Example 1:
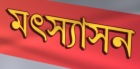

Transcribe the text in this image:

মৎস্যাসন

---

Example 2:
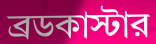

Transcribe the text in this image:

ব্রডকাস্টার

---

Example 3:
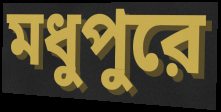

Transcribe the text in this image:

মধুপুরে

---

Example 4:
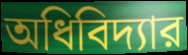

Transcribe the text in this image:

অধিবিদ্যার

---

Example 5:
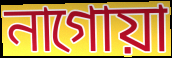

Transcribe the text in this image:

নাগোয়া